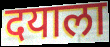
दयाला